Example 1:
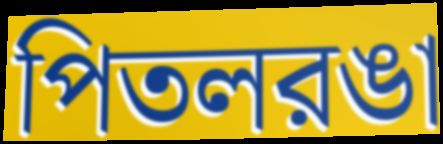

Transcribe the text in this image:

পিতলরঙা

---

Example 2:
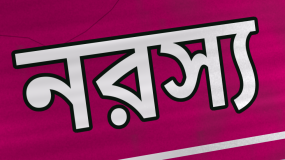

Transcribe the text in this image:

নরস্য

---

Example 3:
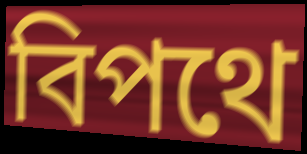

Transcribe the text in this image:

বিপথে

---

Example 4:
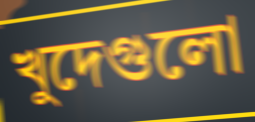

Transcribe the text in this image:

খুদেগুলো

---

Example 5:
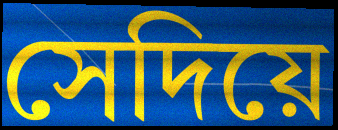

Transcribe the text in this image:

সেদিয়ে